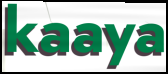
kaaya